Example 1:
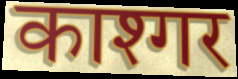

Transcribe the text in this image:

काश्गर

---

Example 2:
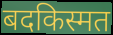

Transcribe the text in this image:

बदकिस्मत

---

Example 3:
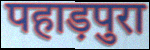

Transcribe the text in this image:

पहाड़पुरा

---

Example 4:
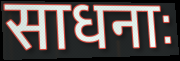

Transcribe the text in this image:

साधनाः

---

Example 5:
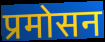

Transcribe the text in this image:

प्रमोसन